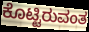
ಕೊಟ್ಟಿರುವಂತ